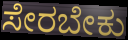
ಸೇರಬೇಕು